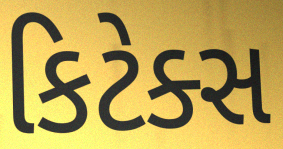
કિટેક્સ